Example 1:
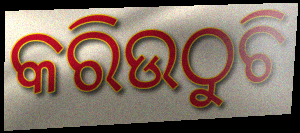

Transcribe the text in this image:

କରିଉଠୁଚି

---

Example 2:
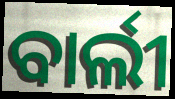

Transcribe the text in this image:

ବାର୍ଲୀ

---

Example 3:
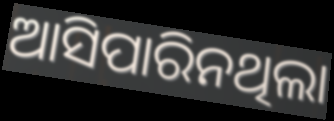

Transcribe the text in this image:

ଆସିପାରିନଥିଲା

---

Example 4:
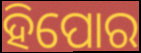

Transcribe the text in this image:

ହିପୋର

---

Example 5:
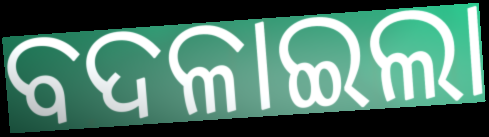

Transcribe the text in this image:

ବଦଳାଇଲା